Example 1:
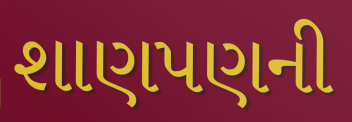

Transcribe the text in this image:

શાણપણની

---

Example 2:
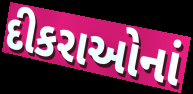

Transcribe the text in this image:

દીકરાઓનાં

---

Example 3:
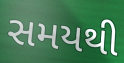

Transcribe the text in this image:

સમયથી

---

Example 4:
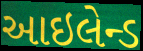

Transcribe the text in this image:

આઇલેન્ડ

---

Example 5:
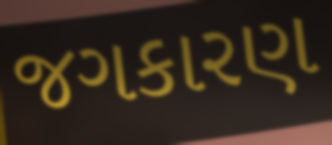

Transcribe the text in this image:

જગકારણ